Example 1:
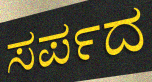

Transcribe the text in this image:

ಸರ್ಪದ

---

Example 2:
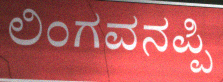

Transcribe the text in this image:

ಲಿಂಗವನಪ್ಪಿ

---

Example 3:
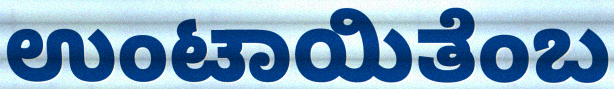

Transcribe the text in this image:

ಉಂಟಾಯಿತೆಂಬ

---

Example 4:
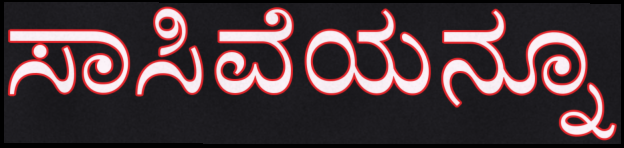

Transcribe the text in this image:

ಸಾಸಿವೆಯನ್ನೂ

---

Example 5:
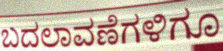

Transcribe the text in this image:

ಬದಲಾವಣೆಗಳಿಗೂ